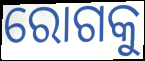
ରୋଗକୁ